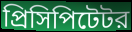
প্রিসিপিটেটর